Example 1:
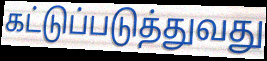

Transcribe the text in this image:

கட்டுப்படுத்துவது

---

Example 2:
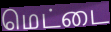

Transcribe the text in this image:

மெட்டை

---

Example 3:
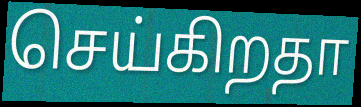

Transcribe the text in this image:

செய்கிறதா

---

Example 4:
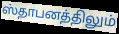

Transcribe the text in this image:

ஸ்தாபனத்திலும்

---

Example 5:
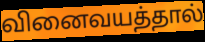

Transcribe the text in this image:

வினைவயத்தால்